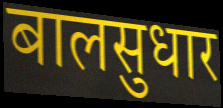
बालसुधार